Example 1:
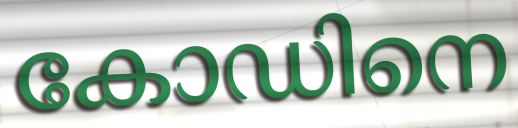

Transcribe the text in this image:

കോഡിനെ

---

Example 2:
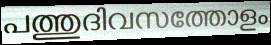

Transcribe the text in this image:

പത്തുദിവസത്തോളം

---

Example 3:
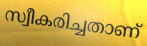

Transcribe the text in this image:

സ്വീകരിച്ചതാണ്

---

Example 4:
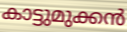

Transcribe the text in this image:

കാട്ടുമുക്കൻ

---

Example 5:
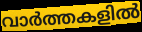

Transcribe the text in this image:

വാർത്തകളിൽ